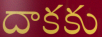
దాకకు